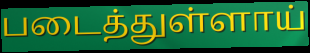
படைத்துள்ளாய்